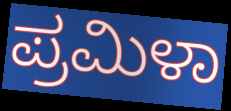
ಪ್ರಮಿಳಾ